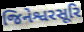
જિનેશ્વરસૂરિ